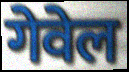
गेवेल